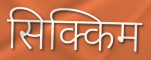
सिक्किम